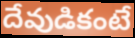
దేవుడికంటే